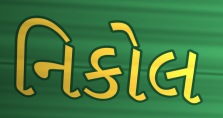
નિકોલ